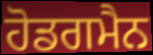
ਹੋਡਗਮੈਨ